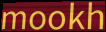
mookh